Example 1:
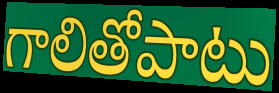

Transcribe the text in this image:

గాలితోపాటు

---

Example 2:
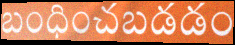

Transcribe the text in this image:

బంధించబడడం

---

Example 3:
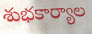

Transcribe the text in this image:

శుభకార్యాల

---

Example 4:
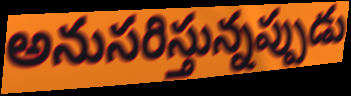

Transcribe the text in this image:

అనుసరిస్తున్నప్పుడు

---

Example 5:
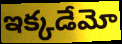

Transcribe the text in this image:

ఇక్కడేమో